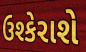
ઉશ્કેરાશે